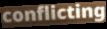
conflicting